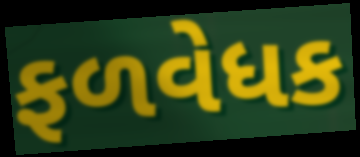
ફળવેધક